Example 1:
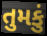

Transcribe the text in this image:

તુમકું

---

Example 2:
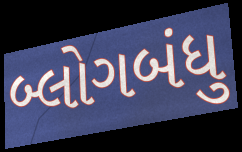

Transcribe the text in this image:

બ્લોગબંધુ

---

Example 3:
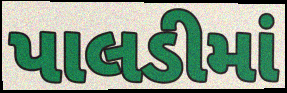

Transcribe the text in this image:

પાલડીમાં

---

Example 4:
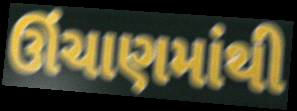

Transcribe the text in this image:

ઊંચાણમાંથી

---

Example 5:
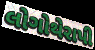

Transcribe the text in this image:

લોગોથેરાપી